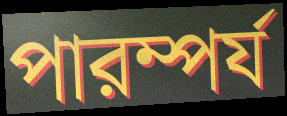
পারম্পর্য